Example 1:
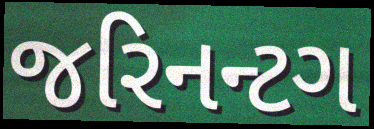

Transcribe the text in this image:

જરિનન્ટગ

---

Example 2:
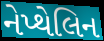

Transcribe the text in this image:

નેપ્થેલિન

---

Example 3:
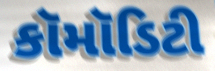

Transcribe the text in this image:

કૉમૉડિટી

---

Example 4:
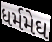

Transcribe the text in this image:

ધર્મમેઘ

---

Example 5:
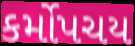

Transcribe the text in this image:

કર્મોપચય